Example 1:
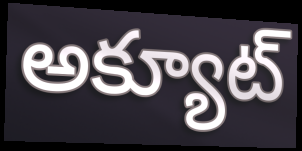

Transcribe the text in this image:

అక్యూట్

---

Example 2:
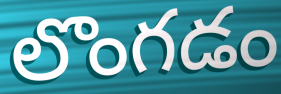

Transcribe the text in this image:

లొంగడం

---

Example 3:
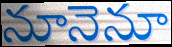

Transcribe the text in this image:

నూనెనూ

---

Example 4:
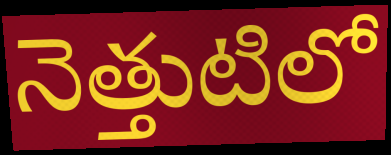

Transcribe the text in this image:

నెత్తుటిలో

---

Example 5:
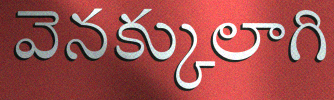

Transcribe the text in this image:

వెనక్కులాగి